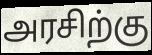
அரசிற்கு